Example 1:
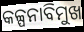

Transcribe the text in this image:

କଳ୍ପନାବିମୁଖ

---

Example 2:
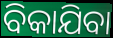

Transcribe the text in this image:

ବିକାଯିବା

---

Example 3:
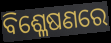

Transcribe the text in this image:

ବିଶ୍ଳେଷଣରେ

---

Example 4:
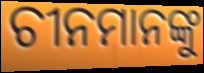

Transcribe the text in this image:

ଚୀନମାନଙ୍କୁ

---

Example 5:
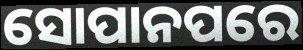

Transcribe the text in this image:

ସୋପାନପରେ